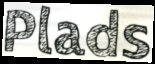
Plads